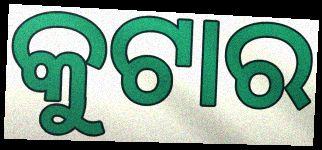
କୁଟାର